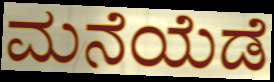
ಮನೆಯೆಡೆ